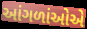
આંગળાંઓએ